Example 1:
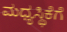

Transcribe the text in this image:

ಮಧ್ಯಸ್ಥಿಕೆಗೆ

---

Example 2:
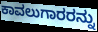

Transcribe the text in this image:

ಕಾವಲುಗಾರರನ್ನು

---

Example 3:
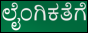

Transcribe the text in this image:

ಲೈಂಗಿಕತೆಗೆ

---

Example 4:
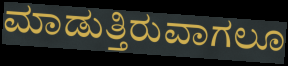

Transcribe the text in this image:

ಮಾಡುತ್ತಿರುವಾಗಲೂ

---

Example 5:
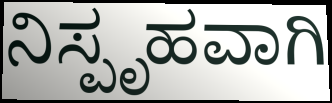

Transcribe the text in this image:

ನಿಸ್ಪೃಹವಾಗಿ